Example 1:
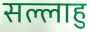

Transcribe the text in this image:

सल्लाहु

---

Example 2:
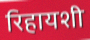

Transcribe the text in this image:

रिहायशी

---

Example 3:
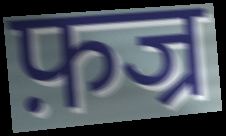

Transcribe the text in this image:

फ़ज्र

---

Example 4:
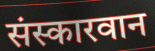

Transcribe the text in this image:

संस्कारवान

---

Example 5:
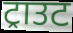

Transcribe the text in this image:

ट्राउट